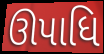
ઊપાધિ